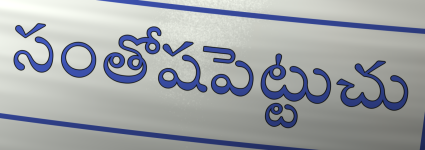
సంతోషపెట్టుచు